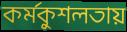
কর্মকুশলতায়